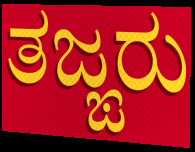
ತಜ್ಙರು